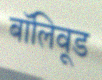
बॉलिवूड